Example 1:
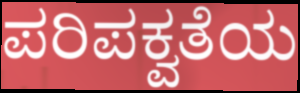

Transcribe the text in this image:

ಪರಿಪಕ್ವತೆಯ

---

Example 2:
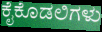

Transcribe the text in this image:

ಕೈಕೊಡಲಿಗಳು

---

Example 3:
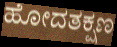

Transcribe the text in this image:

ಹೋದತಕ್ಷಣ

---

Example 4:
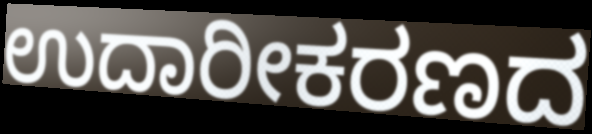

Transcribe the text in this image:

ಉದಾರೀಕರಣದ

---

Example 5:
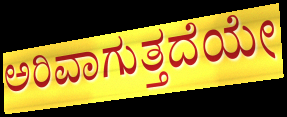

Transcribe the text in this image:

ಅರಿವಾಗುತ್ತದೆಯೇ